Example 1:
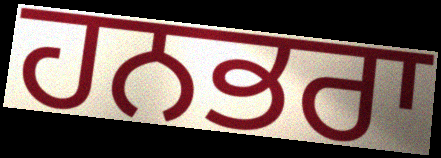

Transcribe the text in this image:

ਹਨਭਰਾ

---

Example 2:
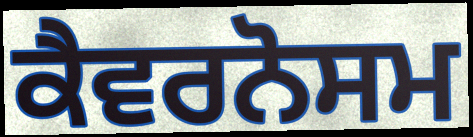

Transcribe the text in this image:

ਕੈਵਰਨੋਸਮ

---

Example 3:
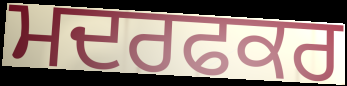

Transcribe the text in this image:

ਮਦਰਫਕਰ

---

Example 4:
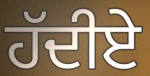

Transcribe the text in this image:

ਹੱਦੀਏ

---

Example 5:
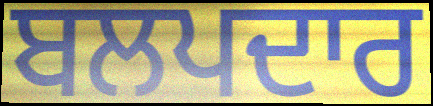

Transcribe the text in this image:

ਬਲਪਦਾਰ